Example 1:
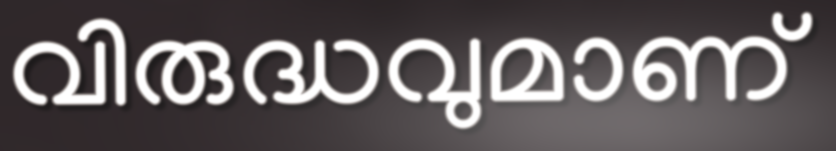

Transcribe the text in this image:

വിരുദ്ധവുമാണ്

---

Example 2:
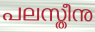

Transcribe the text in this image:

പലസ്തീനു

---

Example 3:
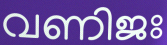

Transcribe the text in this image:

വണിജഃ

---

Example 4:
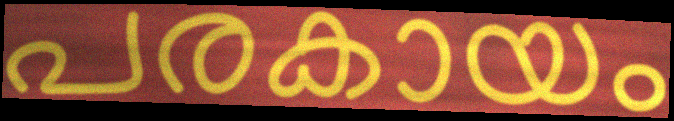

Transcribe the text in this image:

പരകായം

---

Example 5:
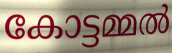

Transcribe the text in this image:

കോട്ടമ്മൽ